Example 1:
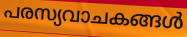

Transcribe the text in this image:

പരസ്യവാചകങ്ങൾ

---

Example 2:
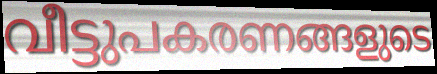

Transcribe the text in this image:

വീട്ടുപകരണങ്ങളുടെ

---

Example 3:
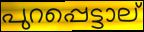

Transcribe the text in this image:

പുറപ്പെട്ടാല്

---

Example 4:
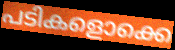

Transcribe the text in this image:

പടികളൊക്കെ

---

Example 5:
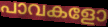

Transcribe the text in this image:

പാവകളോ